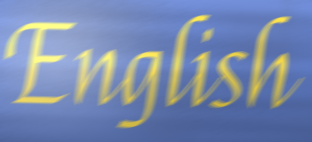
English